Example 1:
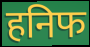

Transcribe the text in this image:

हनिफ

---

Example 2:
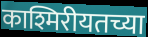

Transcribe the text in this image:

काश्मिरीयतच्या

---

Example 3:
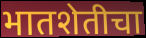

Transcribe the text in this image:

भातशेतीचा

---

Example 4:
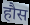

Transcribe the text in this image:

हौस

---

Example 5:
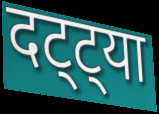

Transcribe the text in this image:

दट्ट्या